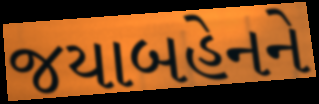
જયાબહેનને